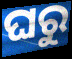
ଘରୁ